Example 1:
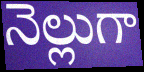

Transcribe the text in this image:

నెల్లుగా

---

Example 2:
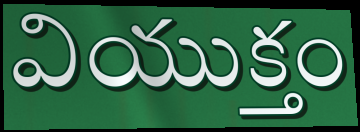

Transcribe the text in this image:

వియుక్తం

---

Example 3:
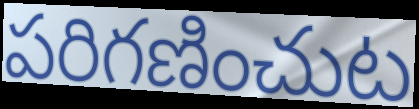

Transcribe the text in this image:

పరిగణించుట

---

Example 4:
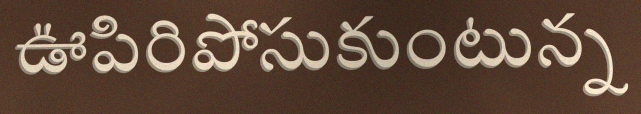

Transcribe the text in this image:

ఊపిరిపోసుకుంటున్న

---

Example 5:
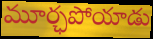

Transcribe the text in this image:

మూర్ఛపోయాడు